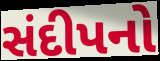
સંદીપનો